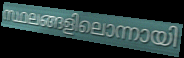
സ്ഥലങ്ങളിലൊന്നായി